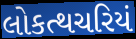
લોકત્થચરિયં